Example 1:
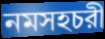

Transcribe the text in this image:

নমসহচরী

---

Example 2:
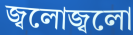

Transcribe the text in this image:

জ্বলোজ্বলো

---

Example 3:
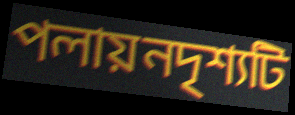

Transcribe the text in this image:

পলায়নদৃশ্যটি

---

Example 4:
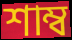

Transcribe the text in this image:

শাম্ব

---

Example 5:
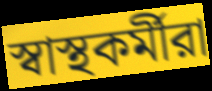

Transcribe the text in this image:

স্বাস্থকর্মীরা